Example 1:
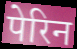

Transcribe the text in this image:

पेरिन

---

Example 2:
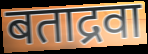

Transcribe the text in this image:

बताद्रवा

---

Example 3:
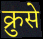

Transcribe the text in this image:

क्रुसे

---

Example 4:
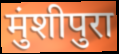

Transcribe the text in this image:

मुंशीपुरा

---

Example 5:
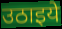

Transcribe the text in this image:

उठाइये